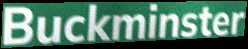
Buckminster